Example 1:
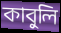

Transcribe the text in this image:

কাবুলি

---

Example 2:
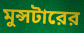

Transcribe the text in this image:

মুন্সটারের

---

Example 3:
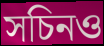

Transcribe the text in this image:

সচিনও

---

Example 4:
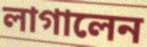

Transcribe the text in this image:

লাগালেন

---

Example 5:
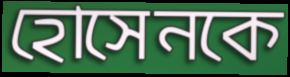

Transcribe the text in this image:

হোসেনকে